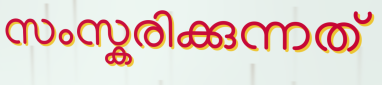
സംസ്കരിക്കുന്നത്